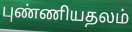
புண்ணியதலம்